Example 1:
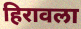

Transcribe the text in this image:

हिरावला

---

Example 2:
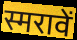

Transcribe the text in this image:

स्मरावें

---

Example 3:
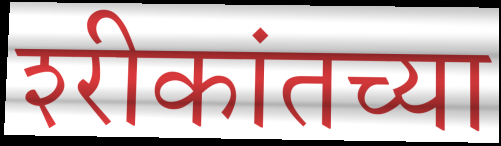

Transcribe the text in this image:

श्रीकांतच्या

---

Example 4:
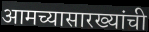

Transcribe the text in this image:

आमच्यासारख्यांची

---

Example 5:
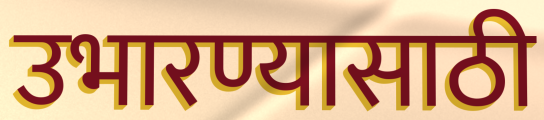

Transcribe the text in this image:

उभारण्यासाठी